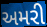
અમરી